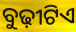
ବୁଢ଼ୀଟିଏ